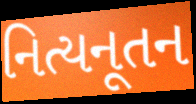
નિત્યનૂતન